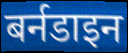
बर्नडाइन